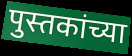
पुस्तकांच्या